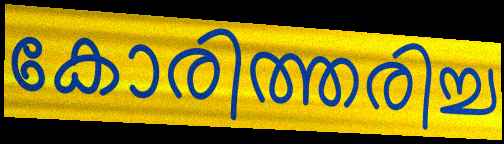
കോരിത്തരിച്ച